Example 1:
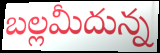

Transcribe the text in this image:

బల్లమీదున్న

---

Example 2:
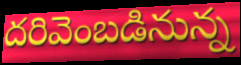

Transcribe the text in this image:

దరివెంబడినున్న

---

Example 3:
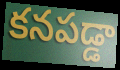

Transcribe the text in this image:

కనపడ్డా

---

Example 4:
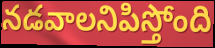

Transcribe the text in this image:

నడవాలనిపిస్తోంది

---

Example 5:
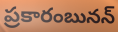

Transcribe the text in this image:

ప్రకారంబునన్